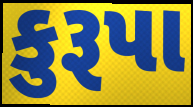
કુરૂપા